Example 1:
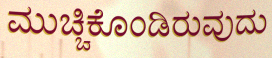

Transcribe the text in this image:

ಮುಚ್ಚಿಕೊಂಡಿರುವುದು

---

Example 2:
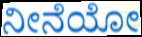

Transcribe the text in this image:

ನೀನೆಯೋ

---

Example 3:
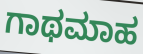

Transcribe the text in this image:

ಗಾಥಮಾಹ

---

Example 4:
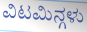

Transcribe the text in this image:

ವಿಟಮಿನ್ಗಳು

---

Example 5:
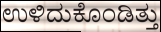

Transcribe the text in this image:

ಉಳಿದುಕೊಂಡಿತ್ತು